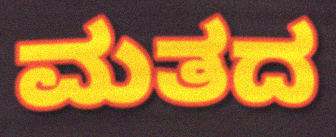
ಮತದ